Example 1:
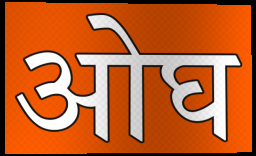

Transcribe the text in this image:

ओघ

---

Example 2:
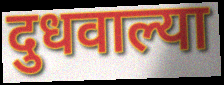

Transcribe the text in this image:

दुधवाल्या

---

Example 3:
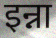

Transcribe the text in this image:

इन्ना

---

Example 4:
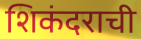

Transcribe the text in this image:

शिकंदराची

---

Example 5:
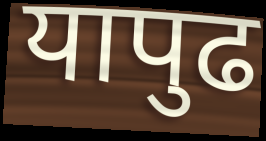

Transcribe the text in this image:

यापुढ